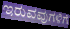
ಇರುವವುಗಳಿಗೆ